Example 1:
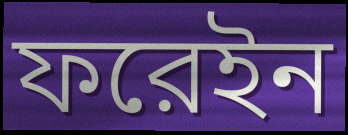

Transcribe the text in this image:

ফরেইন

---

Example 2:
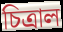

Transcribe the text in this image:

চিত্রাল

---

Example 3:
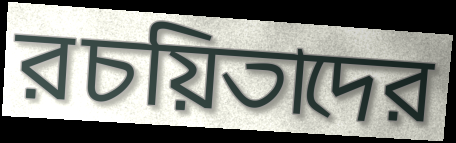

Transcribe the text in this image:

রচয়িতাদের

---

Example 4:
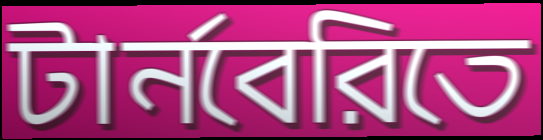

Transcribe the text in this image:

টার্নবেরিতে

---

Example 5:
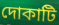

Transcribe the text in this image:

দোকাটি